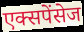
एक्सपेंसेज